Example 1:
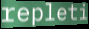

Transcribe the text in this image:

repleti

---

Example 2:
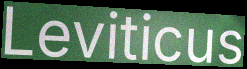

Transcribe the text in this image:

Leviticus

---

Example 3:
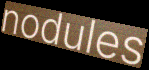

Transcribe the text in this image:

nodules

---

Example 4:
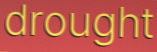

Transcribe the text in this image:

drought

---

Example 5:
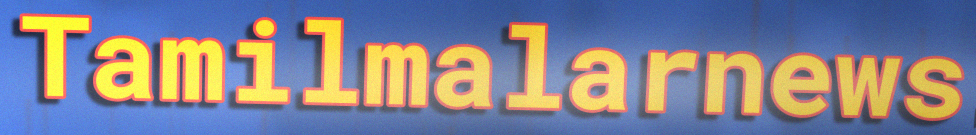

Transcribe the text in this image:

Tamilmalarnews